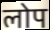
लोप